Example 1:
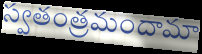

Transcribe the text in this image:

స్వతంత్రమందామా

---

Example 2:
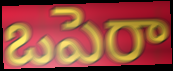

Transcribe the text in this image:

ఒపెరా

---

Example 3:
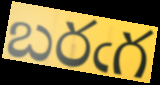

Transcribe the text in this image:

బరఁగ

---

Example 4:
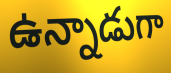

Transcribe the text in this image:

ఉన్నాడుగా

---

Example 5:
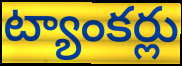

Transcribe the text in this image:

ట్యాంకర్లు